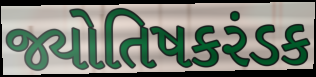
જ્યોતિષકરંડક